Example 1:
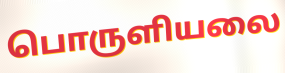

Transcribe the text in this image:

பொருளியலை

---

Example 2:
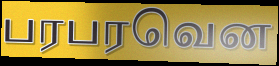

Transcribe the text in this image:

பரபரவென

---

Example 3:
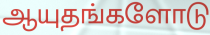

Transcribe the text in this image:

ஆயுதங்களோடு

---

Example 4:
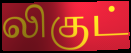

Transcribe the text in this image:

லிகுட்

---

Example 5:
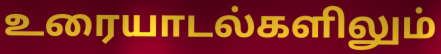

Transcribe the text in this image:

உரையாடல்களிலும்